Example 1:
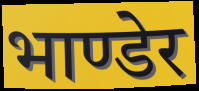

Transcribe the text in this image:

भाण्डेर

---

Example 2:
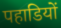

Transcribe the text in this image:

पहाडियों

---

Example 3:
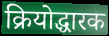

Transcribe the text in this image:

क्रियोद्धारक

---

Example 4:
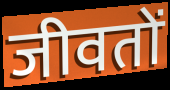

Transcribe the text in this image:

जीवतों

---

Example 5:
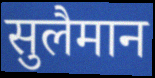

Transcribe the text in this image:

सुलैमान